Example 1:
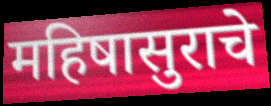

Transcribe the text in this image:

महिषासुराचे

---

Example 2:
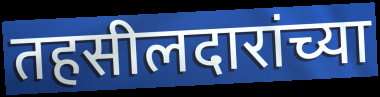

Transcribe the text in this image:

तहसीलदारांच्या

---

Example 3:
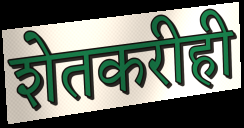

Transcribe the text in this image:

शेतकरीही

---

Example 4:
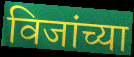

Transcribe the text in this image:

विजांच्या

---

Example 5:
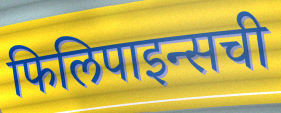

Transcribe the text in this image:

फिलिपाइन्सची